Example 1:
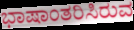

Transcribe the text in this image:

ಭಾಷಾಂತರಿಸಿರುವ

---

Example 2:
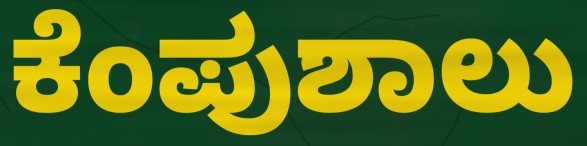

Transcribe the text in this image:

ಕೆಂಪುಶಾಲು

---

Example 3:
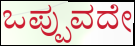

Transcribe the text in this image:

ಒಪ್ಪುವದೇ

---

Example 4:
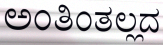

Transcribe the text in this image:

ಅಂತಿಂತಲ್ಲದ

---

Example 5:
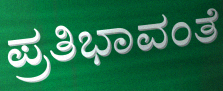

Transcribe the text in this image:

ಪ್ರತಿಭಾವಂತೆ